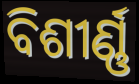
ବିଶୀର୍ଣ୍ଣ